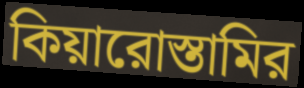
কিয়ারোস্তামির